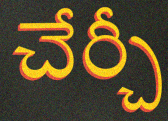
చేర్చీ